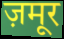
ज़मूर